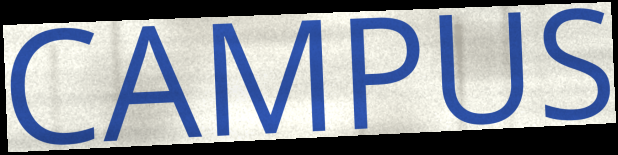
CAMPUS